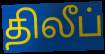
திலீப்